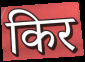
किर